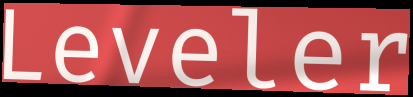
Leveler